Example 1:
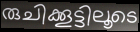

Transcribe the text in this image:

രുചിക്കൂട്ടിലൂടെ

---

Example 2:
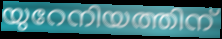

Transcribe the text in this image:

യുറേനിയത്തിന്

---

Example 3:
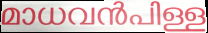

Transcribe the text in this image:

മാധവൻപിള്ള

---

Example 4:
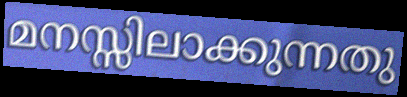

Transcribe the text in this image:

മനസ്സിലാക്കുന്നതു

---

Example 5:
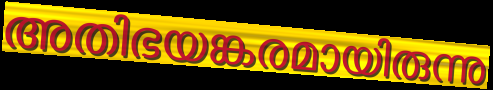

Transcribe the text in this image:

അതിഭയങ്കരമായിരുന്നു